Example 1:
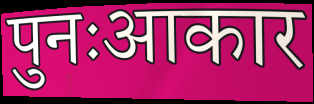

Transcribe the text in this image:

पुनःआकार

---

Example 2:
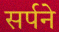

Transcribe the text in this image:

सर्पने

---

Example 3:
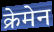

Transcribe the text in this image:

क्रेमेन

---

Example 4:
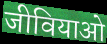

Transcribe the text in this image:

जीवियाओ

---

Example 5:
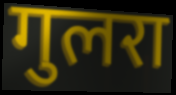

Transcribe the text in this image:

गुलरा